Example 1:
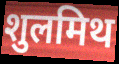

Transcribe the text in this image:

शुलमिथ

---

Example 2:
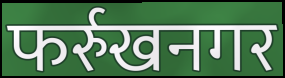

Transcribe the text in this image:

फर्रुखनगर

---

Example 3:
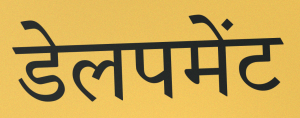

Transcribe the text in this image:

डेलपमेंट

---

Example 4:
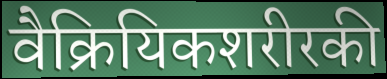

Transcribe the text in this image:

वैक्रियिकशरीरकी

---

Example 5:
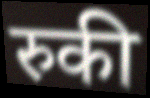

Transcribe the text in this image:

रुकी